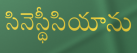
సినెస్థీసియాను